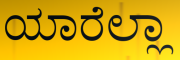
ಯಾರೆಲ್ಲಾ